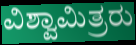
ವಿಶ್ವಾಮಿತ್ರರು